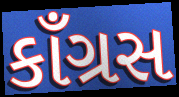
કાઁગ્રસ